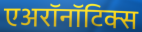
एअरॉनॉटिक्स